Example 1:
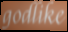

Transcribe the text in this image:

godlike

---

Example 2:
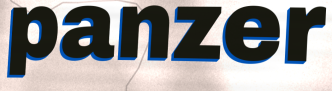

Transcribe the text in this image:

panzer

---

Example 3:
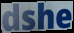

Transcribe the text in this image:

dshe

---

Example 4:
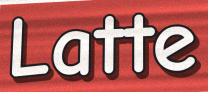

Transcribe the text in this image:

Latte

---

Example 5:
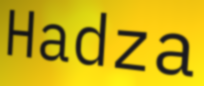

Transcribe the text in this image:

Hadza